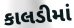
કાલડીમાં